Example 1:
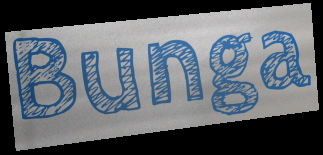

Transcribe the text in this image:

Bunga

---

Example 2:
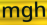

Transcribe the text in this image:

mgh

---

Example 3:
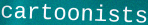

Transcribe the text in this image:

cartoonists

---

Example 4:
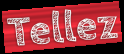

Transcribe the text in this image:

Tellez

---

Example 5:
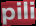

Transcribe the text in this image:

pili